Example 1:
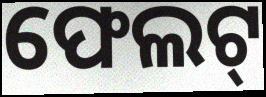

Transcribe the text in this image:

ଫେଲଟ୍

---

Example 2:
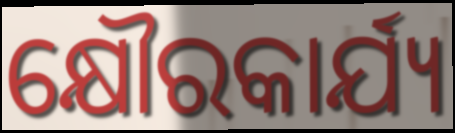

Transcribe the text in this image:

କ୍ଷୌରକାର୍ଯ୍ୟ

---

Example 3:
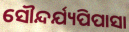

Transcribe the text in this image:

ସୌନ୍ଦର୍ଯ୍ୟପିପାସା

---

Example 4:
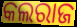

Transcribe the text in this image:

କଲରାଜ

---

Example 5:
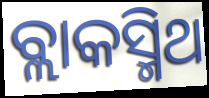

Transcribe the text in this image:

ବ୍ଲାକସ୍ମିଥ